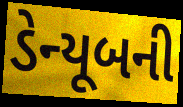
ડેન્યૂબની